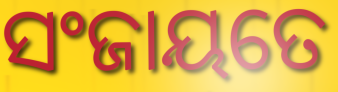
ସଂଜାୟତେ